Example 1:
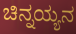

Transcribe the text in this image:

ಚಿನ್ನಯ್ಯನ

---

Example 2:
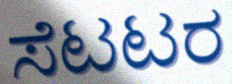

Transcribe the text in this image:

ಸೆಟಟರ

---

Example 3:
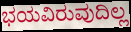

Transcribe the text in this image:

ಭಯವಿರುವುದಿಲ್ಲ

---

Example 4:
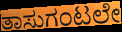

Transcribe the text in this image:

ತಾಸುಗಂಟಲೇ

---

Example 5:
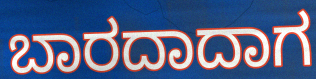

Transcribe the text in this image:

ಬಾರದಾದಾಗ